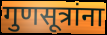
गुणसूत्रांना